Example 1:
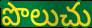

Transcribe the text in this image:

పొలుచు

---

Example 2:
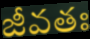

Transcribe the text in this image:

జీవతః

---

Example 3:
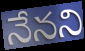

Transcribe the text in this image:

నేనని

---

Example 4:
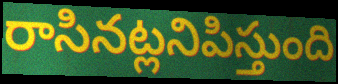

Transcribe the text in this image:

రాసినట్లనిపిస్తుంది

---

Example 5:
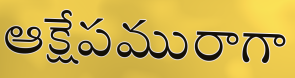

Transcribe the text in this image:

ఆక్షేపమురాగా